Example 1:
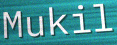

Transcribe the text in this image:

Mukil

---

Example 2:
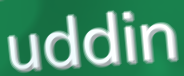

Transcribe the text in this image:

uddin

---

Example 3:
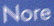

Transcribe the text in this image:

Nore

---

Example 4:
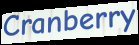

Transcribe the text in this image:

Cranberry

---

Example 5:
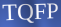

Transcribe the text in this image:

TQFP